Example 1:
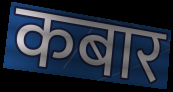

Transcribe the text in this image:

कबार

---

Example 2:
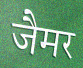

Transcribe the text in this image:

जैमर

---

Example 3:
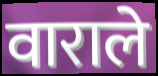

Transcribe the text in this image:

वाराले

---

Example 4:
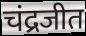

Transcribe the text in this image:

चंद्रजीत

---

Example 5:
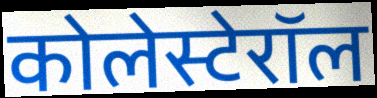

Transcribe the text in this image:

कोलेस्टेरॉल